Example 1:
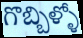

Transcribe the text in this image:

గొబ్బిళ్ళో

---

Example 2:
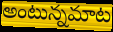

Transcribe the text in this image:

అంటున్నమాట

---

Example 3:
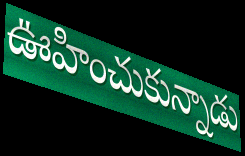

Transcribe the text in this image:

ఊహించుకున్నాడు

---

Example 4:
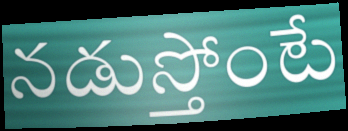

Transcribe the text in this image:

నడుస్తోంటే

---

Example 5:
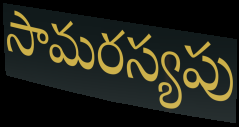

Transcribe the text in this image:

సామరస్యపు